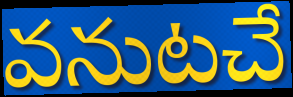
వనుటచే